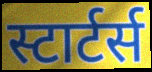
स्टार्टर्स